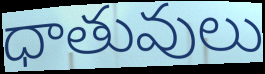
ధాతువులు